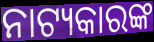
ନାଟ୍ୟକାରଙ୍କ